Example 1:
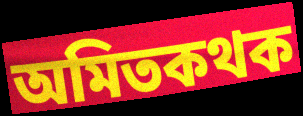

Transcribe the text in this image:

অমিতকথক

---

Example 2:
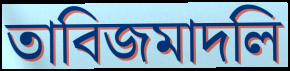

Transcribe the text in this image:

তাবিজমাদলি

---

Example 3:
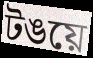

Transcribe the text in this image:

টঙয়ে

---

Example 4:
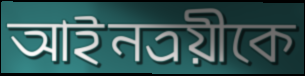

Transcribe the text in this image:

আইনত্রয়ীকে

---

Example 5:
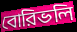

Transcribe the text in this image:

বোরিভলি